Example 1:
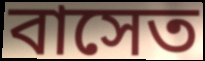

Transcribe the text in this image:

বাসেত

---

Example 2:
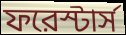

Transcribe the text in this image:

ফরেস্টার্স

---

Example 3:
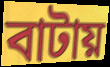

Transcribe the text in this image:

বাটায়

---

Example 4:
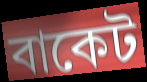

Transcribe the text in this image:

বাকেট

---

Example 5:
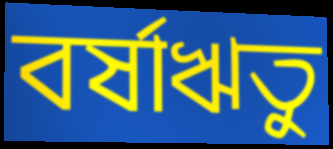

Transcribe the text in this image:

বর্ষাঋতু